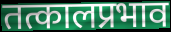
तत्कालप्रभाव